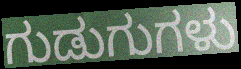
ಗುಡುಗುಗಳು